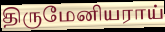
திருமேனியராய்